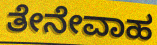
ತೇನೇವಾಹ